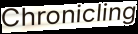
Chronicling